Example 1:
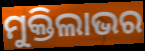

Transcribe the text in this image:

ମୁକ୍ତିଲାଭର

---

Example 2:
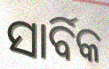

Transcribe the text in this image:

ସାର୍ବିକ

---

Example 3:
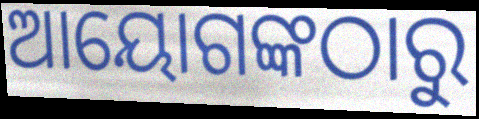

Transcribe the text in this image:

ଆୟୋଗଙ୍କଠାରୁ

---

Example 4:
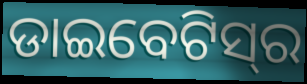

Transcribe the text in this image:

ଡାଇବେଟିସ୍‌ର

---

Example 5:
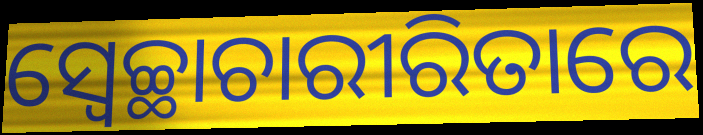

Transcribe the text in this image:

ସ୍ଵେଚ୍ଛାଚାରୀରିତାରେ